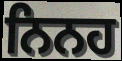
ਨਿਨਹ